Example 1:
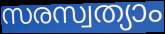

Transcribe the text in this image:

സരസ്വത്യാം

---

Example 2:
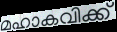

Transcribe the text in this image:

മഹാകവിക്ക്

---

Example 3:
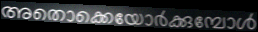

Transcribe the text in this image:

അതൊക്കെയോർക്കുമ്പോൾ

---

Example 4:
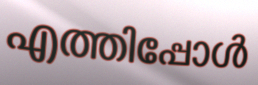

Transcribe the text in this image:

എത്തിപ്പോൾ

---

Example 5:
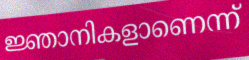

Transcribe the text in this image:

ജ്ഞാനികളാണെന്ന്